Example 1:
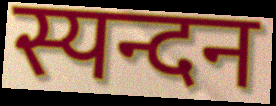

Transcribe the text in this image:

स्यन्दन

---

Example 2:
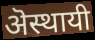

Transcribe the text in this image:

ऄस्थायी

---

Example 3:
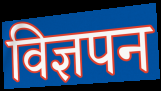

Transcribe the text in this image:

विज्ञपन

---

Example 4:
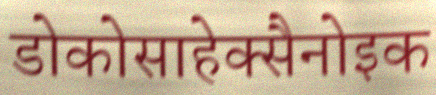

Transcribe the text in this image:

डोकोसाहेक्सैनोइक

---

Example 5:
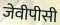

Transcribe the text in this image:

जेवीपीसी